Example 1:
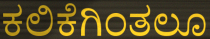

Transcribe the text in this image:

ಕಲಿಕೆಗಿಂತಲೂ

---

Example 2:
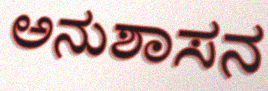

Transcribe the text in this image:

ಅನುಶಾಸನ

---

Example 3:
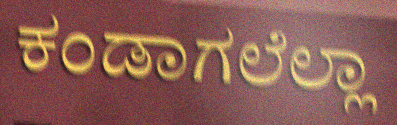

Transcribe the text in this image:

ಕಂಡಾಗಲೆಲ್ಲಾ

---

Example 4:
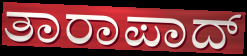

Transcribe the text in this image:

ತಾರಾಪಾದ್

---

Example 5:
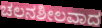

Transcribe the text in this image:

ಚಲನಶೀಲವಾದ